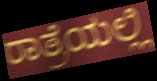
ರಾತ್ರೆಯಲ್ಲಿ